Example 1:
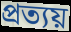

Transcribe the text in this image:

প্রত্যয়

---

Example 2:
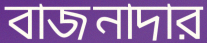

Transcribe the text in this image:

বাজনাদার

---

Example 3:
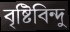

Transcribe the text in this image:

বৃষ্টিবিন্দু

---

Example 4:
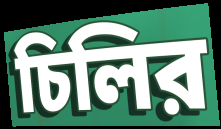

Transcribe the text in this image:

চিলির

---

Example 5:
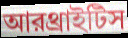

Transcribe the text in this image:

আরথ্রাইটিস